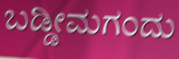
ಬಡ್ಡೀಮಗಂದು